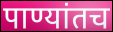
पाण्यांतच